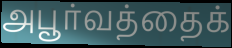
அபூர்வத்தைக்